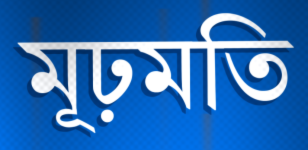
মূঢ়মতি